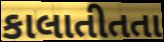
કાલાતીતતા